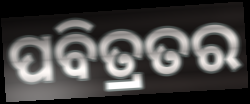
ପବିତ୍ରତର